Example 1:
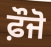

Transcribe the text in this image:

ਫ਼ੌਜੋ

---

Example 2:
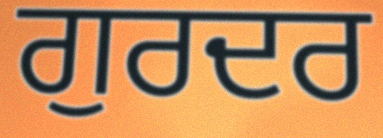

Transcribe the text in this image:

ਗੁਰਦਰ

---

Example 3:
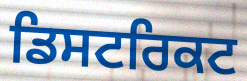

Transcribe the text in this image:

ਡਿਸਟਰਿਕਟ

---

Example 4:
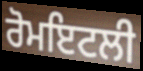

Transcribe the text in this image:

ਰੋਮਇਟਲੀ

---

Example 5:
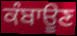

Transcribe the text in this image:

ਕੰਬਾਊਣ